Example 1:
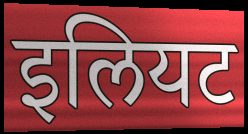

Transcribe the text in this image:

इलियट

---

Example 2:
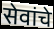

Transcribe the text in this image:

सेवांचे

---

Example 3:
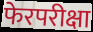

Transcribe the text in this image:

फेरपरीक्षा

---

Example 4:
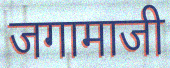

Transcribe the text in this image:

जगामाजी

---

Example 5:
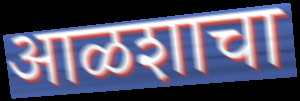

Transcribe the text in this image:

आळशाचा